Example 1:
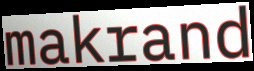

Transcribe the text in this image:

makrand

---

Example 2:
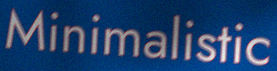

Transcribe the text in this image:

Minimalistic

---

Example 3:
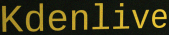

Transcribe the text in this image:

Kdenlive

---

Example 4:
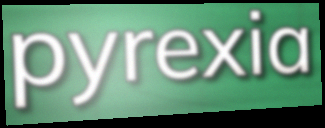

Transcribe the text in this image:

pyrexia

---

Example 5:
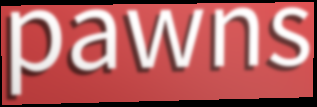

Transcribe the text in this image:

pawns